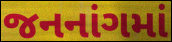
જનનાંગમાં